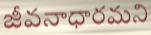
జీవనాధారమని